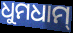
ଧୁମଧାମ୍